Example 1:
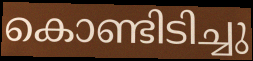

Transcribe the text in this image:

കൊണ്ടിടിച്ചു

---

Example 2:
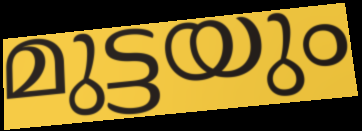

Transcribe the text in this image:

മുട്ടയും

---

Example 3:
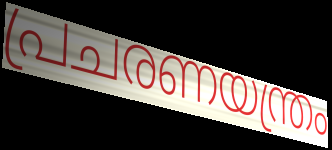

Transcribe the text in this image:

പ്രചരണയന്ത്രം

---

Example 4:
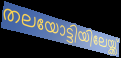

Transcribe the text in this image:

തലയോട്ടിയിലേയ്ക്ക്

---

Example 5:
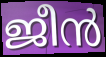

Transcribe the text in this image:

ജീൻ